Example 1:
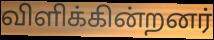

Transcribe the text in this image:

விளிக்கின்றனர்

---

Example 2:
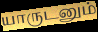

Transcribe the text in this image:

யாருடனும்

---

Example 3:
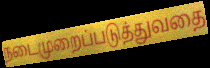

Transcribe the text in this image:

நடைமுறைப்படுத்துவதை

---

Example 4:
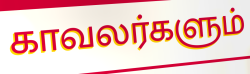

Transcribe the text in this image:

காவலர்களும்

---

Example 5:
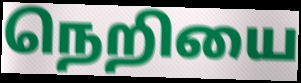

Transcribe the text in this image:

நெறியை